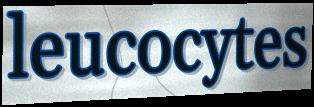
leucocytes